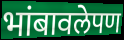
भांबावलेपण